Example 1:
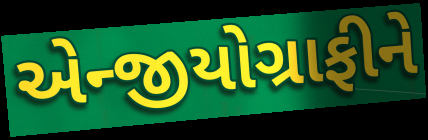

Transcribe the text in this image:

એન્જીયોગ્રાફીને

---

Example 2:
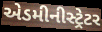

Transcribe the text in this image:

એડમીનીસ્ટ્રેટર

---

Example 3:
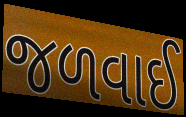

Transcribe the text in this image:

જળવાઈ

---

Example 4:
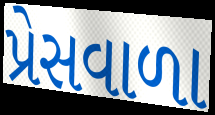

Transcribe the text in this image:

પ્રેસવાળા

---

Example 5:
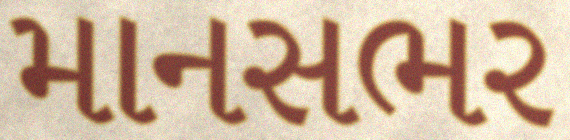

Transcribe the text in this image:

માનસભર